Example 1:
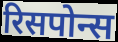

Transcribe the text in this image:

रिसपोन्स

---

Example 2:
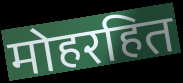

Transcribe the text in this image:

मोहरहित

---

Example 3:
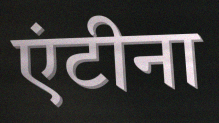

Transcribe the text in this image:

एंटीना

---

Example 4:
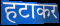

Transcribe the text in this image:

हटाकर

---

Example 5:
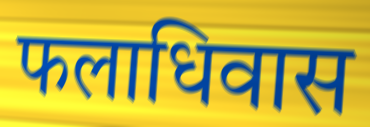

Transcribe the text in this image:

फलाधिवास